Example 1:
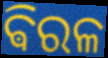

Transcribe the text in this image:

ଵିରଳ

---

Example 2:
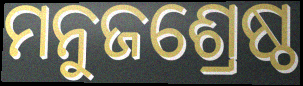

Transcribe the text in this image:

ମନୁଜଶ୍ରେଷ୍ଠ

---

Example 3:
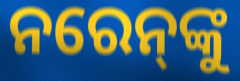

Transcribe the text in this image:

ନରେନ୍‌ଙ୍କୁ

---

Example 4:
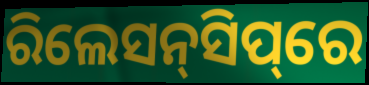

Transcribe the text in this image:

ରିଲେସନ୍‌ସିପ୍‌ରେ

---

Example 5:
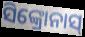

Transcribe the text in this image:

ସିଙ୍କ୍ରୋନାସ୍